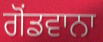
ਗੋਂਡਵਾਨਾ